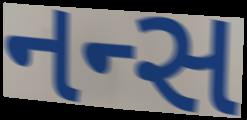
નન્સ